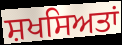
ਸ਼ਖਸਿਅਤਾਂ